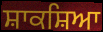
ਸ਼ਾਕਸ਼ਿਆ